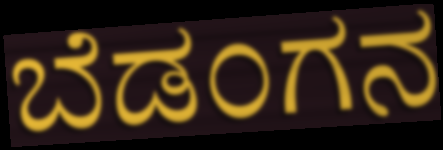
ಬೆಡಂಗನ